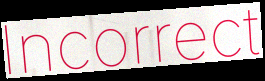
Incorrect